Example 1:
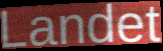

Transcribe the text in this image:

Landet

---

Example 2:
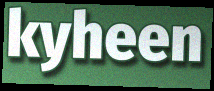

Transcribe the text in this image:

kyheen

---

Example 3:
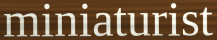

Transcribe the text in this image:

miniaturist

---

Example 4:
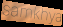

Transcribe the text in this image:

samkhya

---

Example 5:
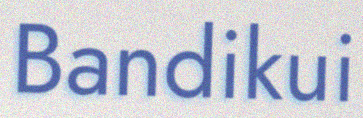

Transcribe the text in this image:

Bandikui